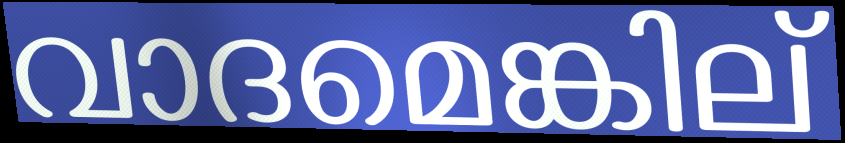
വാദമെങ്കില്